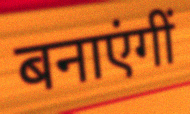
बनाएंगीं